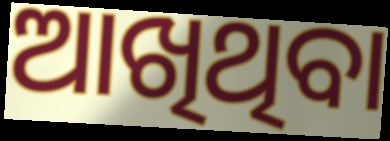
ଆଖିଥିବା